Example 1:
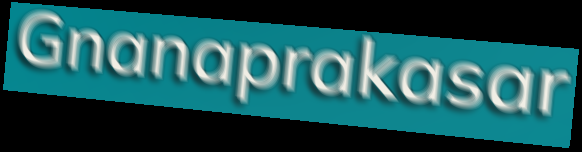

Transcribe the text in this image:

Gnanaprakasar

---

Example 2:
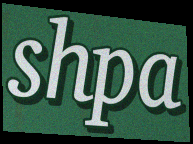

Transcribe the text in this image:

shpa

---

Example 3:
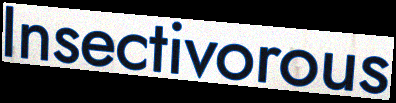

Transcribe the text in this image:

Insectivorous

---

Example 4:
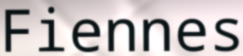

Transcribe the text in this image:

Fiennes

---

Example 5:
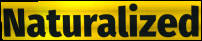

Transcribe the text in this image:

Naturalized